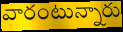
వారంటున్నారు